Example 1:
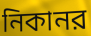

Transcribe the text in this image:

নিকানর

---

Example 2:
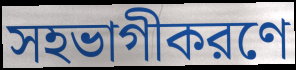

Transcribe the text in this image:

সহভাগীকরণে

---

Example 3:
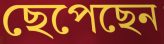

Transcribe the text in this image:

ছেপেছেন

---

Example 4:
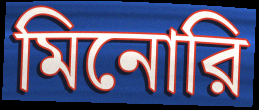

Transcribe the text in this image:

মিনোরি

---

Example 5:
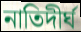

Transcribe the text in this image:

নাতিদীর্ঘ